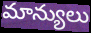
మాన్యులు